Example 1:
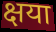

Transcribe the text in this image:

क्षया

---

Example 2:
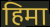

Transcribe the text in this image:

हिमा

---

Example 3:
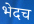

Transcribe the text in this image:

भेदच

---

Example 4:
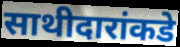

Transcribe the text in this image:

साथीदारांकडे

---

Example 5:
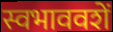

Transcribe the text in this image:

स्वभाववशें